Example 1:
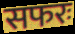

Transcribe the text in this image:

सफरः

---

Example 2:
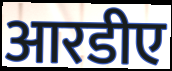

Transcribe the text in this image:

आरडीए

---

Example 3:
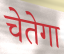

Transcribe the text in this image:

चेतेगा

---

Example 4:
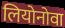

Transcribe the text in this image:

लियोनोवा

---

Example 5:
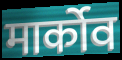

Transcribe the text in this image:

मार्कोव